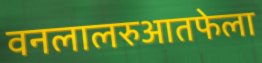
वनलालरुआतफेला